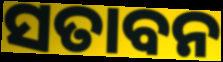
ସତାବନ